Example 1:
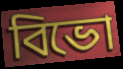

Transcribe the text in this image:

বিভো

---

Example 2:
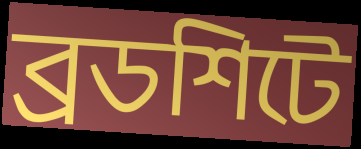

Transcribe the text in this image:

ব্রডশিটে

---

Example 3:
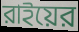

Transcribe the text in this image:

রাইয়ের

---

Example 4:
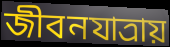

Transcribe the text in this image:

জীবনযাত্রায়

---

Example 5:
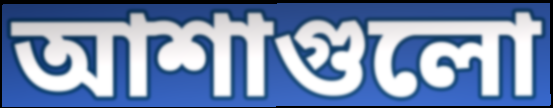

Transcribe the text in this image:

আশাগুলো